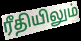
ரீதியிலும்